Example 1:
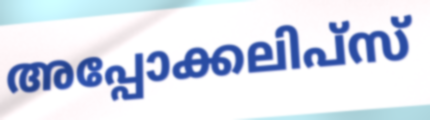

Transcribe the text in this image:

അപ്പോക്കലിപ്സ്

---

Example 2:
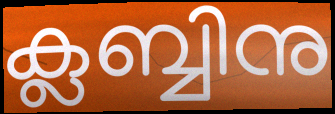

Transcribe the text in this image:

ക്ലബ്ബിനു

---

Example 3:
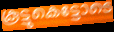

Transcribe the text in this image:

കൂട്ടുകെട്ടോടെ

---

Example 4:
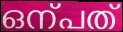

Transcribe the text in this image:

ഒന്പത്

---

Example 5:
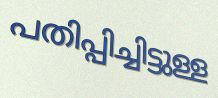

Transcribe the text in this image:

പതിപ്പിച്ചിട്ടുള്ള